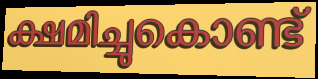
ക്ഷമിച്ചുകൊണ്ട്